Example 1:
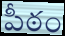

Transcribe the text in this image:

పీఠం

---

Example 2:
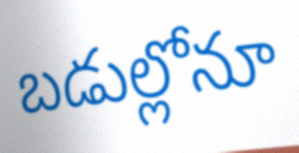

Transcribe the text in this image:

బడుల్లోనూ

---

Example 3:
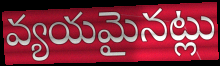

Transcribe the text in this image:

వ్యయమైనట్లు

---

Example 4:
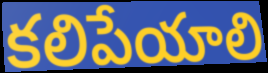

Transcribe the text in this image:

కలిపేయాలి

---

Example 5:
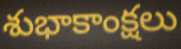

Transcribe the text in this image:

శుభాకాంక్షలు